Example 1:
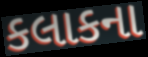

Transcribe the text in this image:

કલાકના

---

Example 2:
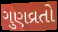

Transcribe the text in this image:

ગુણવ્રતો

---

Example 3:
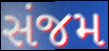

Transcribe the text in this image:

સંજમ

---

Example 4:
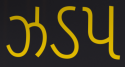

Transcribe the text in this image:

ઝડપ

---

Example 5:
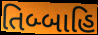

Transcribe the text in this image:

તિબ્બાહિ